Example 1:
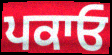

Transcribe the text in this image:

ਪਕਾਓ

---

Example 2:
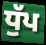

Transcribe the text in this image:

ਧੁੱਪ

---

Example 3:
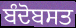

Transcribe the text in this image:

ਬੰਦੋਬਸਤ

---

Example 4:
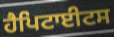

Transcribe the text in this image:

ਹੈਪਿਟਾਈਟਸ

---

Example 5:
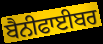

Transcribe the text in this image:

ਬੈਨੀਫਾਈਬਰ